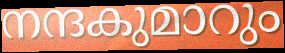
നന്ദകുമാറും